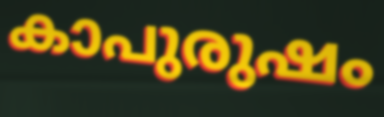
കാപുരുഷം